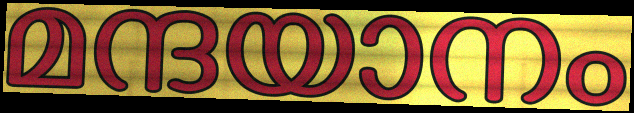
മന്ദയാനം